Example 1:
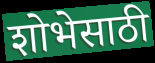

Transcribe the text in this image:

शोभेसाठी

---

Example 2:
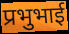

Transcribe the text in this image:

प्रभुभाई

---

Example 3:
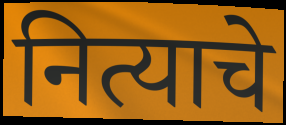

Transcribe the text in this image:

नित्याचे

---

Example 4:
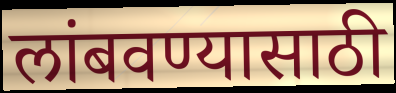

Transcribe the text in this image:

लांबवण्यासाठी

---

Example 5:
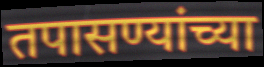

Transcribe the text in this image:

तपासण्यांच्या